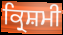
ਕ੍ਰਿਸ਼ਮੀ